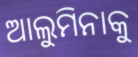
ଆଲୁମିନାକୁ